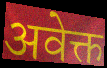
अवेक्त